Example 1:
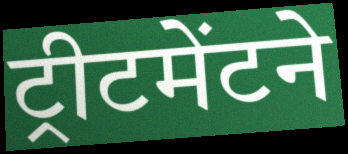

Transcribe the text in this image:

ट्रीटमेंटने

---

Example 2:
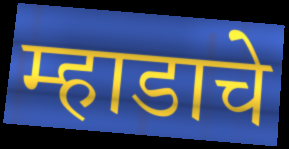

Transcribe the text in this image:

म्हाडाचे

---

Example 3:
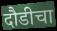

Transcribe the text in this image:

दौडीचा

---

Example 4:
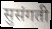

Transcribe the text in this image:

सुसंगती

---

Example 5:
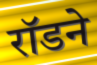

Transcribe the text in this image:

रॉडने